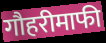
गौहरीमाफी